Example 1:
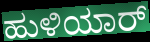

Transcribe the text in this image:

ಹುಳಿಯಾರ್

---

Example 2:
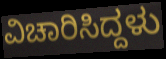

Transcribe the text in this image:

ವಿಚಾರಿಸಿದ್ದಳು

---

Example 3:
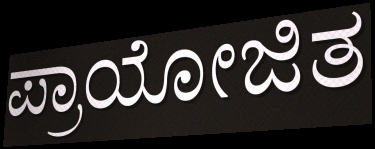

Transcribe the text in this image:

ಪ್ರಾಯೋಜಿತ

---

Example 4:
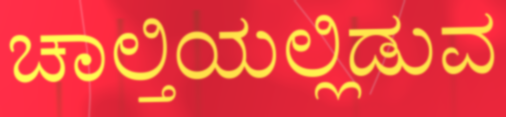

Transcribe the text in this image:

ಚಾಲ್ತಿಯಲ್ಲಿಡುವ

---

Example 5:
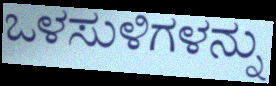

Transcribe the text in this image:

ಒಳಸುಳಿಗಳನ್ನು